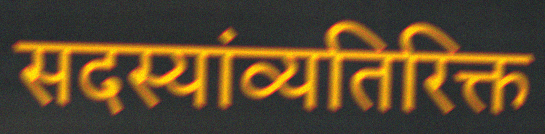
सदस्यांव्यतिरिक्त